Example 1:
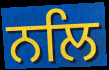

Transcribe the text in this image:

ਨਲਿ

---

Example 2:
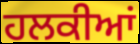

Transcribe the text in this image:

ਹਲਕੀਆਂ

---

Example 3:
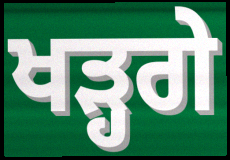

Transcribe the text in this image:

ਖੜ੍ਹਗੇ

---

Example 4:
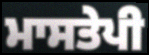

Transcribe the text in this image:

ਮਾਸਤੇਪੀ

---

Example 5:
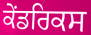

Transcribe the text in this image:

ਕੇਂਡਰਿਕਸ